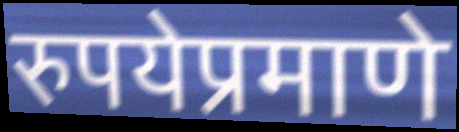
रुपयेप्रमाणे